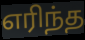
எரிந்த